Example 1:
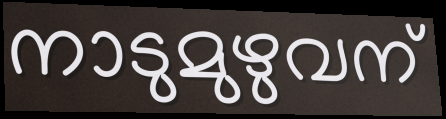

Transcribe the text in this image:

നാടുമുഴുവന്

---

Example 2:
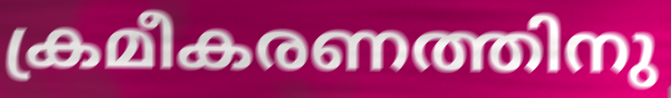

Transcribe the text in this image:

ക്രമീകരണത്തിനു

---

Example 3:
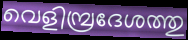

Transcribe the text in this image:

വെളിമ്പ്രദേശത്തു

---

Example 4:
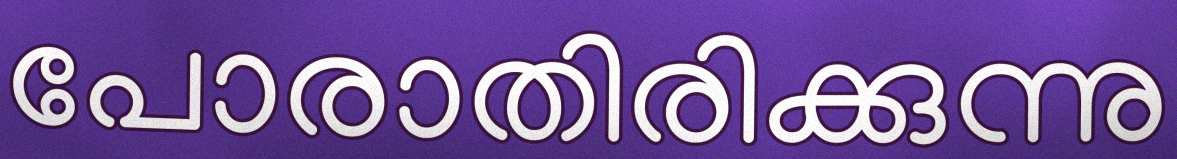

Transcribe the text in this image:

പോരാതിരിക്കുന്നു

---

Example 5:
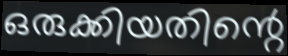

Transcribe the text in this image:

ഒരുക്കിയതിന്റെ